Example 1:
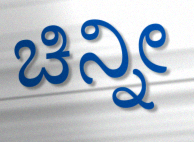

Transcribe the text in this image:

ಚಿನ್ನೀ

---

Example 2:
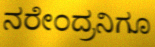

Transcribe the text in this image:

ನರೇಂದ್ರನಿಗೂ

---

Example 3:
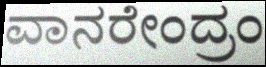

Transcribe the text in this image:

ವಾನರೇಂದ್ರಂ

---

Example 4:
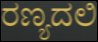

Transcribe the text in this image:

ರಣ್ಯದಲಿ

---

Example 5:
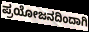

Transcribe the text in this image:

ಪ್ರಯೋಜನದಿಂದಾಗಿ